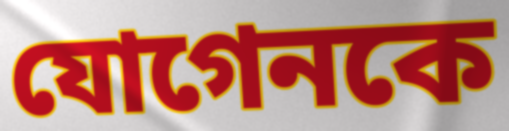
যোগেনকে